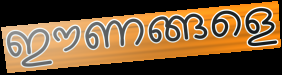
ഈണങ്ങളെ